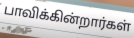
பாவிக்கின்றார்கள்